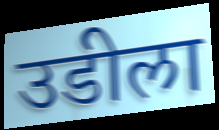
उडीला